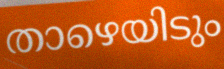
താഴെയിടും